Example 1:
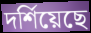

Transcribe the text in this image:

দর্শিয়েছে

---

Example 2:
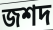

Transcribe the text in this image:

জশদ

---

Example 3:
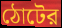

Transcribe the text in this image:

ঠোটের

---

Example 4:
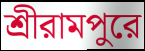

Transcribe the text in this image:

শ্রীরামপুরে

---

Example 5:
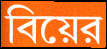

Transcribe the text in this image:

বিয়ের